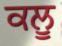
ਕਲੂ